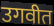
उगवीत